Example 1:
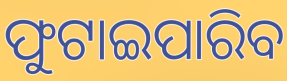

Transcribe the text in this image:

ଫୁଟାଇପାରିବ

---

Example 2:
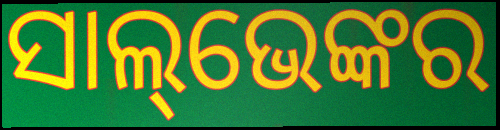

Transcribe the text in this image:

ସାଲ୍‌ଭେଙ୍କର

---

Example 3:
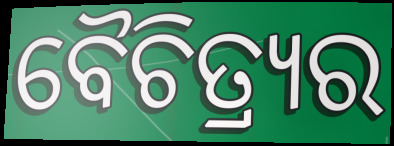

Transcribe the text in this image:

ବୈଚିତ୍ର୍ୟର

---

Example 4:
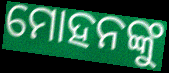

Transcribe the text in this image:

ମୋହନଙ୍କୁ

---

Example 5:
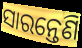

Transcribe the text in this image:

ସାରନ୍ତେଣି